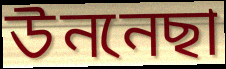
উননেছা